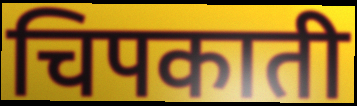
चिपकाती